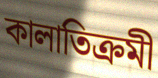
কালাতিক্রমী